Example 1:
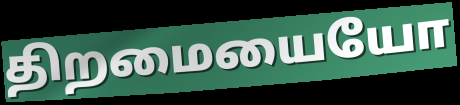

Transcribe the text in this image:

திறமையையோ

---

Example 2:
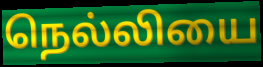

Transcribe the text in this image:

நெல்லியை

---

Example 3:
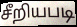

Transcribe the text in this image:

சீறியபடி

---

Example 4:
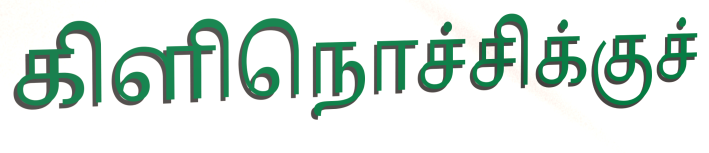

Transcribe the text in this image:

கிளிநொச்சிக்குச்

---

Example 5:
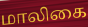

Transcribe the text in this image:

மாலிகை